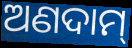
ଅଣଦାମ୍